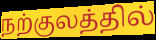
நற்குலத்தில்